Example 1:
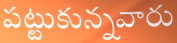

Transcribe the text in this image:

పట్టుకున్నవారు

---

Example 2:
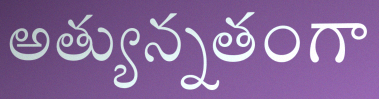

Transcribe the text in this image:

అత్యున్నతంగా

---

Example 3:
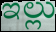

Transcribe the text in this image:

ఇల్లు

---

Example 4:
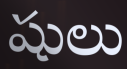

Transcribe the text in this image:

షులు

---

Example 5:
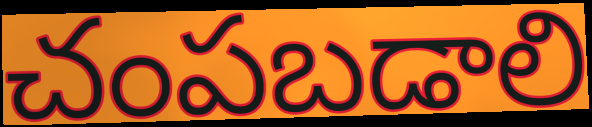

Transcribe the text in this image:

చంపబడాలి